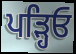
ਪੜ੍ਹਿਓ